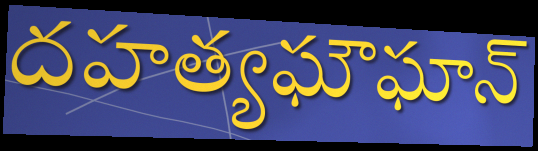
దహత్యఘౌఘాన్